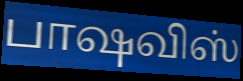
பாஷவிஸ்